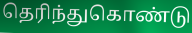
தெரிந்துகொண்டு